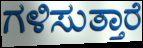
ಗಳಿಸುತ್ತಾರೆ